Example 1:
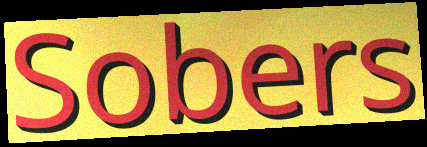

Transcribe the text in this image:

Sobers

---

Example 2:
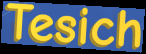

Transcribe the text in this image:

Tesich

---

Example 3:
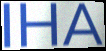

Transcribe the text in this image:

IHA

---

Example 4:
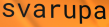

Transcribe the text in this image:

svarupa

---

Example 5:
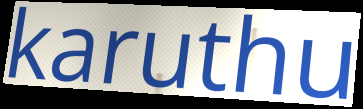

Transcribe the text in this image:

karuthu